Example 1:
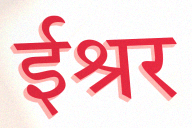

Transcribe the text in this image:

ईश्रर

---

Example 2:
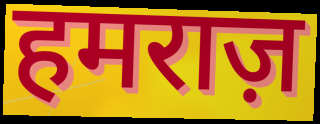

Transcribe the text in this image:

हमराज़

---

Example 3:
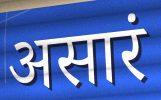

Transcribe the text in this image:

असारं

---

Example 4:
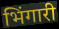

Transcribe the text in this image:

भिंगारी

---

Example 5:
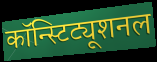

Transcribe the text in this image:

कॉन्स्टिट्यूशनल